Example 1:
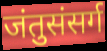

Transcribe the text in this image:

जंतुसंसर्ग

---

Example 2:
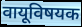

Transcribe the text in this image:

वायूविषयक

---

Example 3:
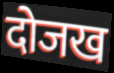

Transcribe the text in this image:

दोजख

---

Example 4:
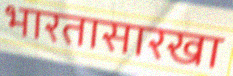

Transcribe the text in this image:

भारतासारखा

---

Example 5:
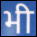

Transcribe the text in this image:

भी